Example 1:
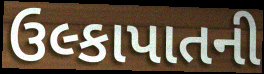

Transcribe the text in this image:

ઉલ્કાપાતની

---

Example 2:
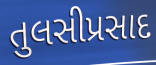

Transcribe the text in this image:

તુલસીપ્રસાદ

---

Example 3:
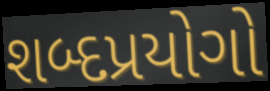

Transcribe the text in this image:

શબ્દપ્રયોગો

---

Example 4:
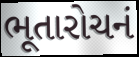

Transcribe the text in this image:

ભૂતારોચનં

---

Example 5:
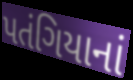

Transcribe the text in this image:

પતંગિયાનાં